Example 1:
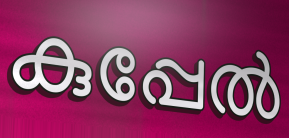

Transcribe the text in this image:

കുപ്പേൽ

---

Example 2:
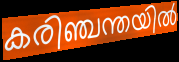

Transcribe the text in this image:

കരിഞ്ചന്തയിൽ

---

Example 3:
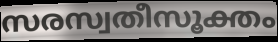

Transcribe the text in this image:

സരസ്വതീസൂക്തം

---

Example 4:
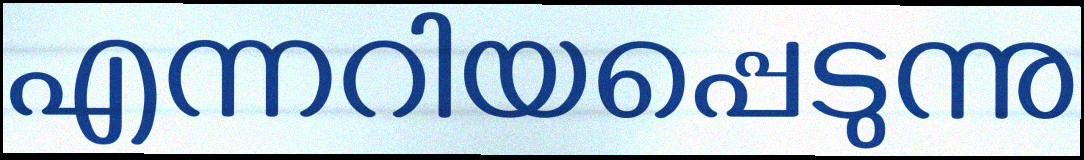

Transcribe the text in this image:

എന്നറിയപ്പെടുന്നു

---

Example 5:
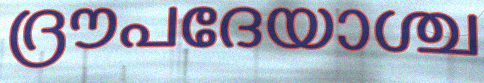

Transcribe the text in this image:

ദ്രൗപദേയാശ്ച